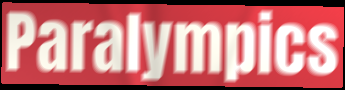
Paralympics